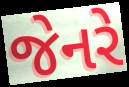
જેનરે